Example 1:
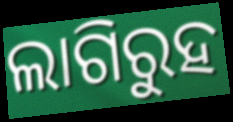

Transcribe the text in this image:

ଲାଗିରୁହ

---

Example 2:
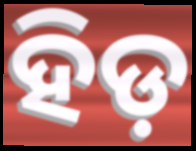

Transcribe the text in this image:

ହିଡ଼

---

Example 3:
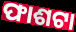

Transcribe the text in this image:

ଫାଶଟା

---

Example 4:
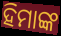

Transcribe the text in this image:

ହିମାଙ୍କ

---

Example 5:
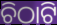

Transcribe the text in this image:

ଚିଠାଟି